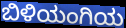
ಬಿಳಿಯಂಗಿಯ